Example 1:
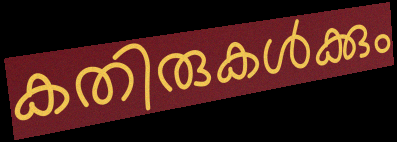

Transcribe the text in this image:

കതിരുകൾക്കും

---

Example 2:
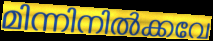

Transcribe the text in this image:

മിന്നിനിൽക്കവേ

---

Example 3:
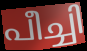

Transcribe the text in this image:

പീച്ചി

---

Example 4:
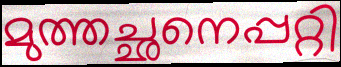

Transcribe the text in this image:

മുത്തച്ഛനെപ്പറ്റി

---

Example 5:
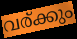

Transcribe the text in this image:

വര്ക്കും